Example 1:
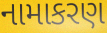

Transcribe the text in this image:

નામાકરણ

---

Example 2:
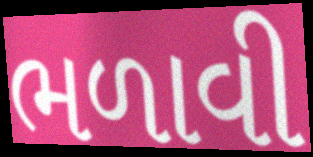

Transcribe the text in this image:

ભળાવી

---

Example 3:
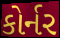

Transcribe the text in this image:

કોર્નર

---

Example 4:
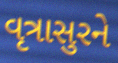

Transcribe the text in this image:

વૃત્રાસુરને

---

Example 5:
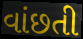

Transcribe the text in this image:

વાંછતી